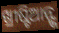
ଖ୍ରୀଷ୍ଟିଆନ୍ଙ୍କ